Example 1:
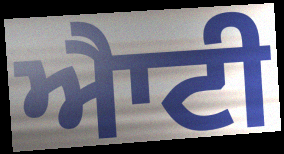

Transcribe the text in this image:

ਐਾਟੀ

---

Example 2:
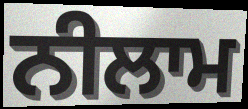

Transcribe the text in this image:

ਨੀਲਾਮ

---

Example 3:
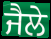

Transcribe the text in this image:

ਜੈਲੇ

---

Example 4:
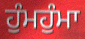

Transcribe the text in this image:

ਹੁੰਮਹੁੰਮਾ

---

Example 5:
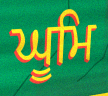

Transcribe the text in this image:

ਘੂਮਿ